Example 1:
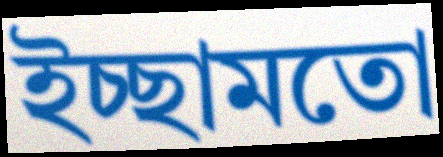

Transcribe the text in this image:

ইচ্ছামতো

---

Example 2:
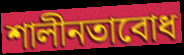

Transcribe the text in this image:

শালীনতাবোধ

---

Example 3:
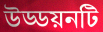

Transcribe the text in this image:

উড্ডয়নটি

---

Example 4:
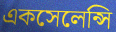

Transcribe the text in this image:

একসেলেন্সি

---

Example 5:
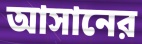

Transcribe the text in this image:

আসানের